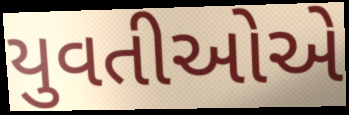
યુવતીઓએ